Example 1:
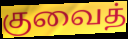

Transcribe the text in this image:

குவைத்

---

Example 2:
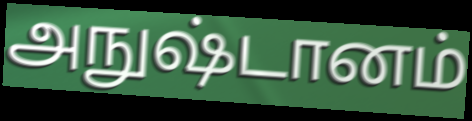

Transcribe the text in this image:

அநுஷ்டானம்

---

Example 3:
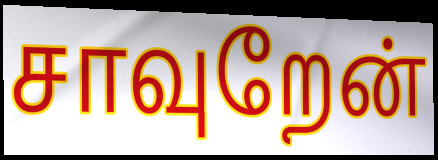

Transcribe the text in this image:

சாவுறேன்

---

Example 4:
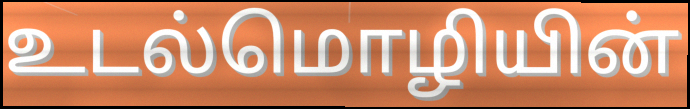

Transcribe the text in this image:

உடல்மொழியின்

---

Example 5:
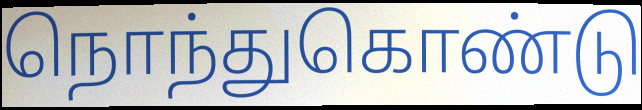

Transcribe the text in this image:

நொந்துகொண்டு